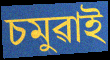
চমুৱাই